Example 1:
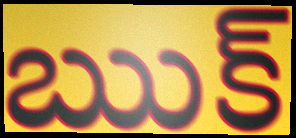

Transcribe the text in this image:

ఋక్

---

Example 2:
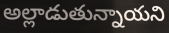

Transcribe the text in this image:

అల్లాడుతున్నాయని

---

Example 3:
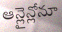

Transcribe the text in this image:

ఆన్లైన్లోనూ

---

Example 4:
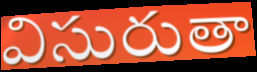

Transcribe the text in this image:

విసురుతా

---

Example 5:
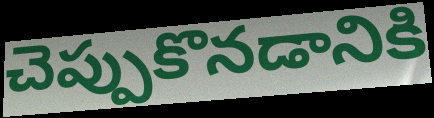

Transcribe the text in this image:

చెప్పుకొనడానికి